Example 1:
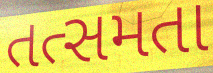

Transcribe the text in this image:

તત્સમતા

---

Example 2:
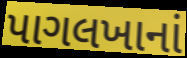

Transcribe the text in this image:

પાગલખાનાં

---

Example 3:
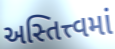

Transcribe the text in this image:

અસ્તિત્ત્વમાં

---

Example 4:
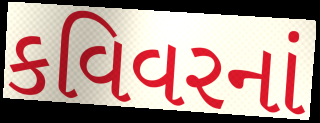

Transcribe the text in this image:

કવિવરનાં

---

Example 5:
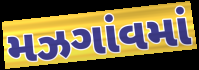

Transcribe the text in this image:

મઝગાંવમાં